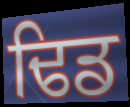
ਢਿਡ